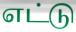
எட்டு